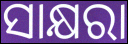
ସାକ୍ଷରା